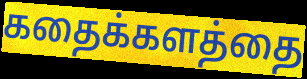
கதைக்களத்தை